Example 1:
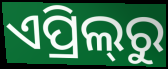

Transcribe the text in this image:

ଏପ୍ରିଲ୍‌ରୁ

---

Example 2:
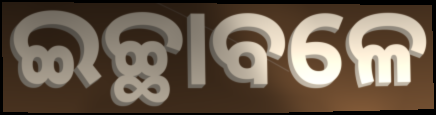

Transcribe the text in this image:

ଇଚ୍ଛାବଳେ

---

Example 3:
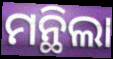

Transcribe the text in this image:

ମନ୍ଥିଲା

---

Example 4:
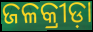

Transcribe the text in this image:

ଜଳକ୍ରୀଡ଼ା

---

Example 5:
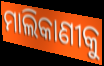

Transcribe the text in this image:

ମାଲିକାଣୀକୁ